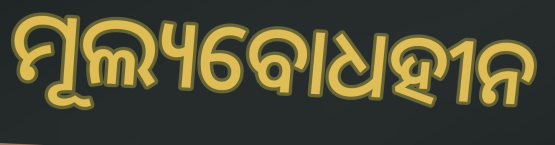
ମୂଲ୍ୟବୋଧହୀନ